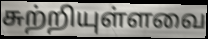
சுற்றியுள்ளவை